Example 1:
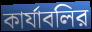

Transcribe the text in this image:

কার্যাবলির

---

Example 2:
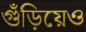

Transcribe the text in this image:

গুঁড়িয়েও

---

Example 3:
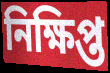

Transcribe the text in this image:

নিক্ষিপ্ত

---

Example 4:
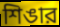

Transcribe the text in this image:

শিঙার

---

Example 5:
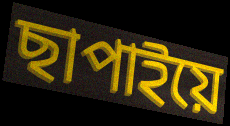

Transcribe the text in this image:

ছাপাইয়ে